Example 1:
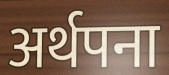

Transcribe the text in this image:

अर्थपना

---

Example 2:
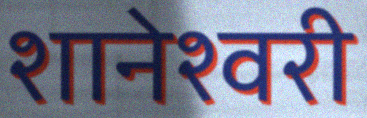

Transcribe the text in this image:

शानेश्वरी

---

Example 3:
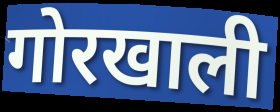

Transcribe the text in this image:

गोरखाली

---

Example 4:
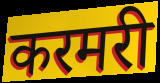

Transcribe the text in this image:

करमरी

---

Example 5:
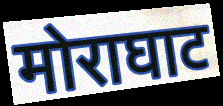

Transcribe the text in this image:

मोराघाट